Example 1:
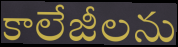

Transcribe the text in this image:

కాలేజీలను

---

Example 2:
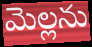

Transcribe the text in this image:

మెల్లను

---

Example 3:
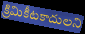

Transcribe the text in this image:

క్రిమికీటకాదులని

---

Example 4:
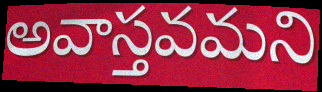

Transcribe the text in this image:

అవాస్తవమని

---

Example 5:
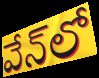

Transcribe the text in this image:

వేన్‌లో